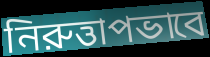
নিরুত্তাপভাবে